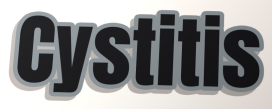
Cystitis